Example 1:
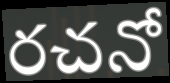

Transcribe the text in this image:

రచనో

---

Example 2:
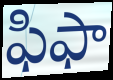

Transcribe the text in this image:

ఫిఫా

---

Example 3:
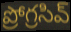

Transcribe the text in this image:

ప్రోగ్రసివ్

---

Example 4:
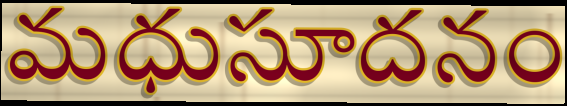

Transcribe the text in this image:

మధుసూదనం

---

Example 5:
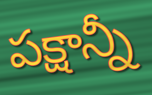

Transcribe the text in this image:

పక్షాన్నీ